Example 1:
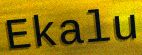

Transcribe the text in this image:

Ekalu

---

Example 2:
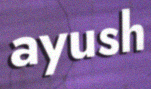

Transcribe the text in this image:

ayush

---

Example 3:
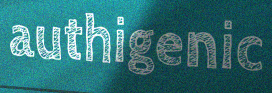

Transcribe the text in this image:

authigenic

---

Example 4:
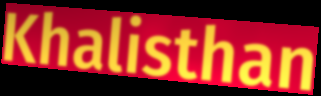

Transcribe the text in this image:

Khalisthan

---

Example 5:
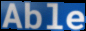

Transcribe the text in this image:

Able